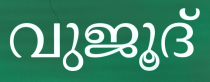
വുജൂദ്